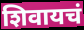
शिवायचं